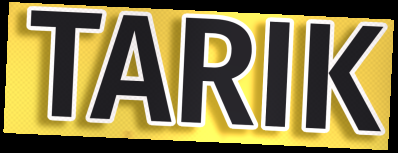
TARIK